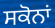
ਸਕੋਨਾਂ